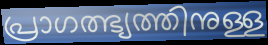
പ്രാഗത്ഭ്യത്തിനുള്ള